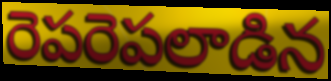
రెపరెపలాడిన